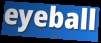
eyeball